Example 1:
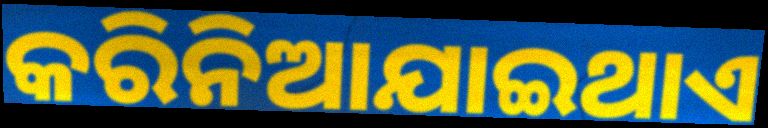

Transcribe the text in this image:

କରିନିଆଯାଇଥାଏ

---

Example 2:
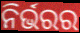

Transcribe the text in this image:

ନିର୍ଭରର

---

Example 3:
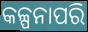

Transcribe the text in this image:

କଳ୍ପନାପରି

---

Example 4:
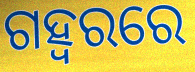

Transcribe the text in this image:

ଗହ୍ୱରରେ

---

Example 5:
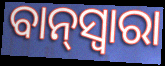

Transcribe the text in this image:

ବାନ୍‌ସ୍ୱାରା